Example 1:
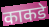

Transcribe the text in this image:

काकडे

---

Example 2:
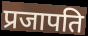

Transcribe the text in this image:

प्रजापति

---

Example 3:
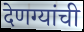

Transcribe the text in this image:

देणग्यांची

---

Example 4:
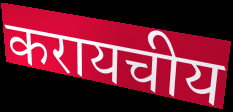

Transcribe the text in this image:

करायचीय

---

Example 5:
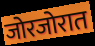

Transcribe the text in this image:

जोरजोरात